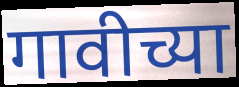
गावीच्या